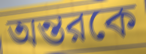
অন্তরকে